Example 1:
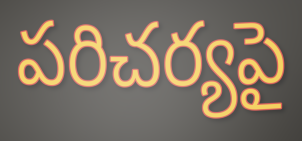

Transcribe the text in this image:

పరిచర్యపై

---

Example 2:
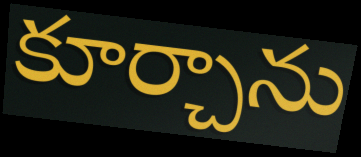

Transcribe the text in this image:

కూర్చాను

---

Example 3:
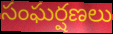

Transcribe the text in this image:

సంఘర్షణలు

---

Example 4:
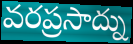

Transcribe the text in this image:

వరప్రసాద్ను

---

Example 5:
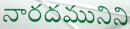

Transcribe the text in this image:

నారదమునిని